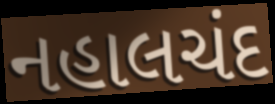
નહાલચંદ